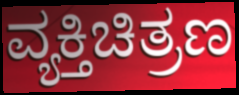
ವ್ಯಕ್ತಿಚಿತ್ರಣ